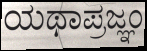
ಯಥಾಪ್ರಜ್ಞಂ